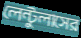
লেন্টুলাসের